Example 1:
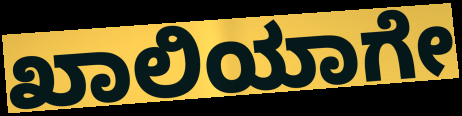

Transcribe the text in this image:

ಖಾಲಿಯಾಗೇ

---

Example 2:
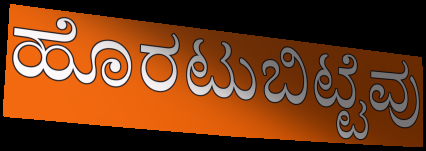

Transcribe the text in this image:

ಹೊರಟುಬಿಟ್ಟೆವು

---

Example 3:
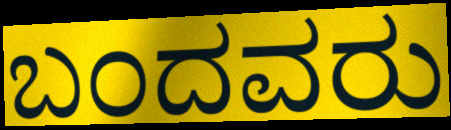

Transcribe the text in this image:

ಬಂದವರು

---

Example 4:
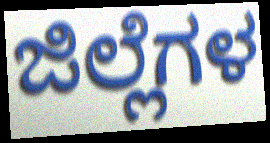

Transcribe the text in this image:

ಜಿಲ್ಲೆಗಳ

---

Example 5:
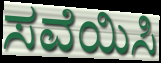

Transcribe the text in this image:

ಸವೆಯಿಸಿ